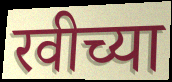
रवीच्या